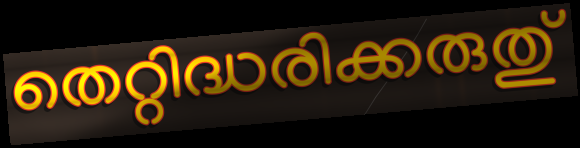
തെറ്റിദ്ധരിക്കരുതു്